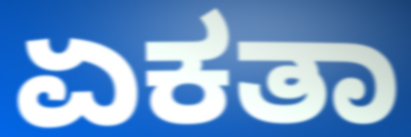
ಏಕತಾ